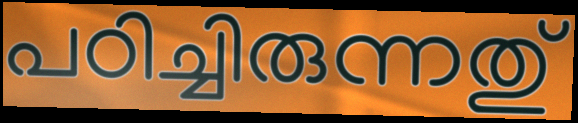
പഠിച്ചിരുന്നതു്